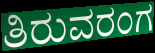
ತಿರುವರಂಗ